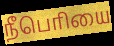
நீபெரியை